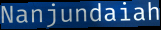
Nanjundaiah